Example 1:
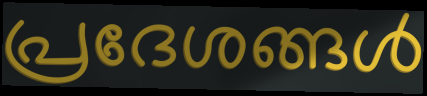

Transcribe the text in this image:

പ്രദേശങ്ങൾ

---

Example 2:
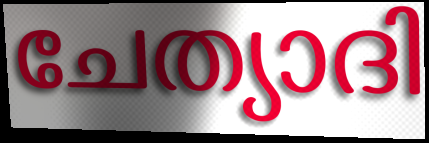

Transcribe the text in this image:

ചേത്യാദി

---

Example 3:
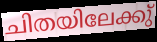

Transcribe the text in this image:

ചിതയിലേക്കു്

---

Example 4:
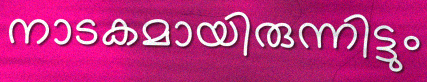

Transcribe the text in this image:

നാടകമായിരുന്നിട്ടും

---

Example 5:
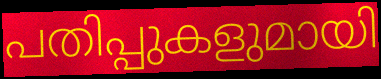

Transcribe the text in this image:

പതിപ്പുകളുമായി